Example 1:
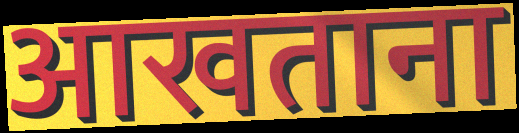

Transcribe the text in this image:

आखताना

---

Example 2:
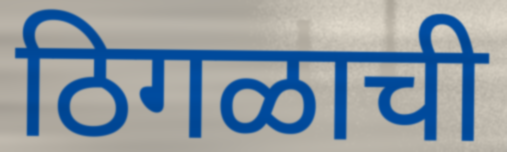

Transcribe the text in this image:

ठिगळाची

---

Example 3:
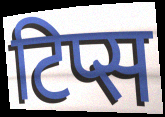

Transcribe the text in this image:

टिप्स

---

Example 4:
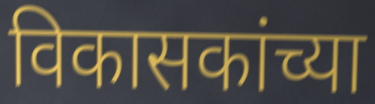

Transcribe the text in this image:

विकासकांच्या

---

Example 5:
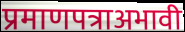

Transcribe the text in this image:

प्रमाणपत्राअभावी